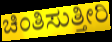
ಚಿಂತಿಸುತ್ತೀರಿ